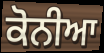
ਕੋਨੀਆ